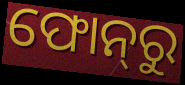
ଫୋନ୍‌ରୁ